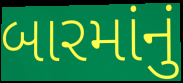
બારમાંનું